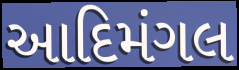
આદિમંગલ